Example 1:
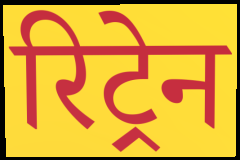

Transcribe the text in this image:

रिट्रेन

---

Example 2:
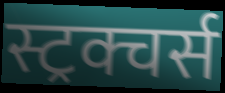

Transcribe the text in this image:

स्ट्रक्चर्स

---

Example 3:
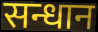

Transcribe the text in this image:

सन्धान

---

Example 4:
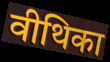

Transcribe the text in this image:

वीथिका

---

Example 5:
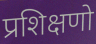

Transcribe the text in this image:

प्रशिक्षणो